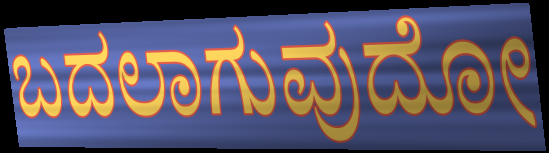
ಬದಲಾಗುವುದೋ